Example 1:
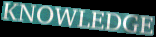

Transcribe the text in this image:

KNOWLEDGE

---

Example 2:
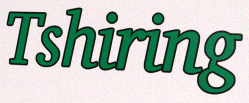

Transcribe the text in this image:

Tshiring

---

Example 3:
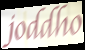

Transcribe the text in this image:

joddho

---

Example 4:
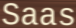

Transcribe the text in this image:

Saas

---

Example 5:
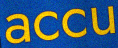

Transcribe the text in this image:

accu